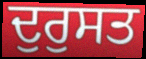
ਦੁਰੁਸਤ